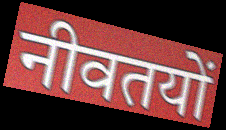
नीवतयों